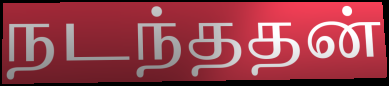
நடந்ததன்